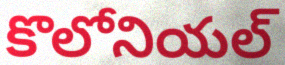
కొలోనియల్